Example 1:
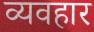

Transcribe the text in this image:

व्यवहार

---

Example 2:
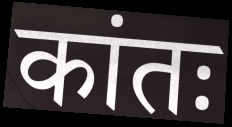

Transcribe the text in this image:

कांतः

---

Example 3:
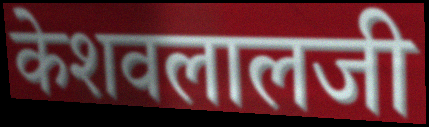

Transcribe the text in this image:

केशवलालजी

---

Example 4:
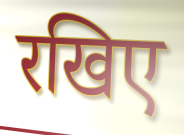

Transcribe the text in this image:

रखिए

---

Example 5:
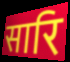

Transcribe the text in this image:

सारि